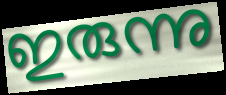
ഇരുന്നു